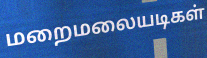
மறைமலையடிகள்